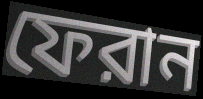
ফেরান